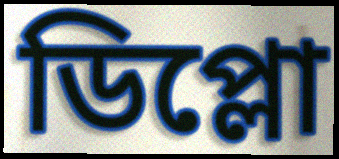
ডিপ্লো